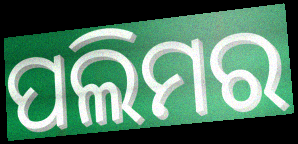
ପଲିମର